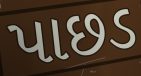
પાછડ